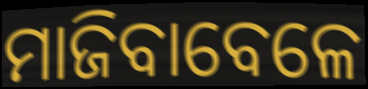
ମାଜିବାବେଳେ